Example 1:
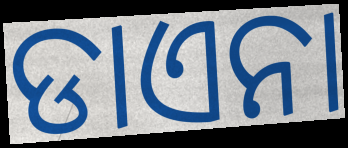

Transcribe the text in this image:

ଡାଏନା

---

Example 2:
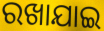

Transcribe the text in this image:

ରଖାଯାଇ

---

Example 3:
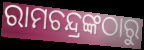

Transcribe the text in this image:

ରାମଚନ୍ଦ୍ରଙ୍କଠାରୁ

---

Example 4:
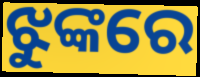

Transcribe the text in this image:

ଝୁଙ୍କରେ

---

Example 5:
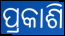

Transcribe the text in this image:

ପ୍ରକାଶି